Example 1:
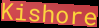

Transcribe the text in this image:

Kishore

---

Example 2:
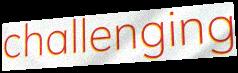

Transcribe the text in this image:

challenging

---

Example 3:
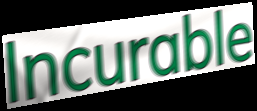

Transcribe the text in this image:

Incurable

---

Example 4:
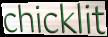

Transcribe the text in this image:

chicklit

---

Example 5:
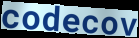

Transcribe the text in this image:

codecov